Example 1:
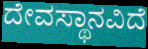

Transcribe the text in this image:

ದೇವಸ್ಥಾನವಿದೆ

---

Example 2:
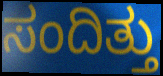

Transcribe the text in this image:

ಸಂದಿತ್ತು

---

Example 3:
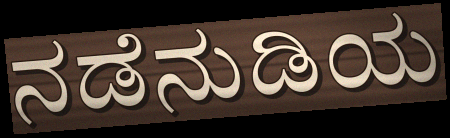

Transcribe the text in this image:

ನಡೆನುಡಿಯ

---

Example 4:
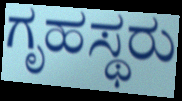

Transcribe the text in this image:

ಗೃಹಸ್ಥರು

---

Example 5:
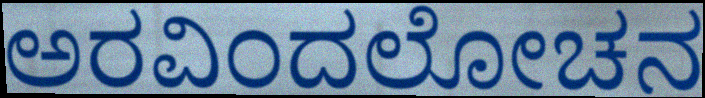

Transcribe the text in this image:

ಅರವಿಂದಲೋಚನ